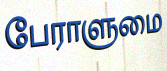
பேராளுமை